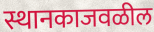
स्थानकाजवळील